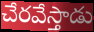
చేరవేస్తాడు